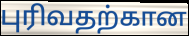
புரிவதற்கான